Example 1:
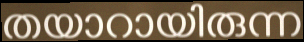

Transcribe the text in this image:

തയാറായിരുന്ന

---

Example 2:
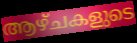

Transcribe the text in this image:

ആഴ്ചകളുടെ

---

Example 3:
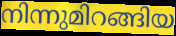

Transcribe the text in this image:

നിന്നുമിറങ്ങിയ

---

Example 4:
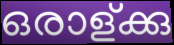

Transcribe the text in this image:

ഒരാള്ക്കു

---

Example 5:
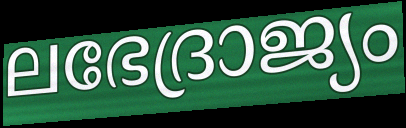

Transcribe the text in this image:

ലഭേദ്രാജ്യം